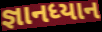
જ્ઞાનધ્યાન